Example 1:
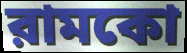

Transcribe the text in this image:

রামকো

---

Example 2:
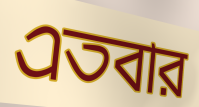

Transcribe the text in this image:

এতবার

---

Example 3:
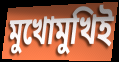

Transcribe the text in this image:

মুখোমুখিই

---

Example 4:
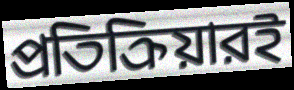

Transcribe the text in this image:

প্রতিক্রিয়ারই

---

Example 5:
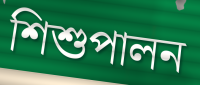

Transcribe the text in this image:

শিশুপালন